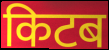
किटब